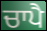
ਚਾਪੈ